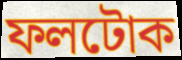
ফলটোক